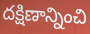
దక్షిణాన్నించి